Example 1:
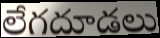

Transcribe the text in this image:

లేగదూడలు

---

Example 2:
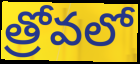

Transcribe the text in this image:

త్రోవలో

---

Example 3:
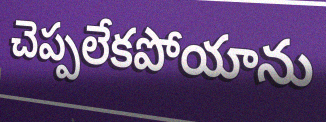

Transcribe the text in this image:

చెప్పలేకపోయాను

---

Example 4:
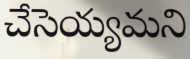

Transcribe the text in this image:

చేసెయ్యమని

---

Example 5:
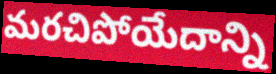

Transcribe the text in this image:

మరచిపోయేదాన్ని